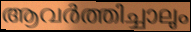
ആവർത്തിച്ചാലും